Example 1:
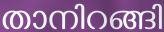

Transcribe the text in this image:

താനിറങ്ങി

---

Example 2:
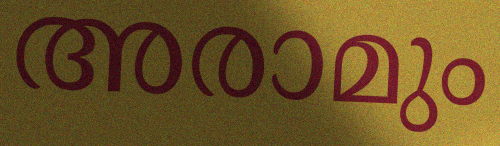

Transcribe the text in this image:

അരാമും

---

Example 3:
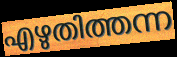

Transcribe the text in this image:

എഴുതിത്തന്ന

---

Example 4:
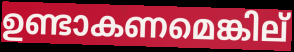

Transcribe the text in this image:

ഉണ്ടാകണമെങ്കില്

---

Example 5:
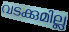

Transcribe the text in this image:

വടക്കുമില്ല